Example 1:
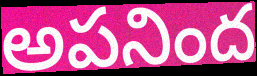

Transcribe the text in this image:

అపనింద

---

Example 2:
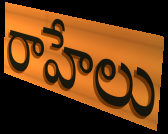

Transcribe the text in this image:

రాహేలు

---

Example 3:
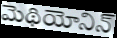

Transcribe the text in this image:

మెథియోనిన్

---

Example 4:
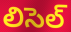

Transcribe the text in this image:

లిసెల్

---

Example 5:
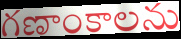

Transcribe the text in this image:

గణాంకాలను